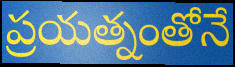
ప్రయత్నంతోనే